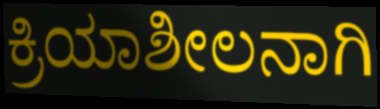
ಕ್ರಿಯಾಶೀಲನಾಗಿ